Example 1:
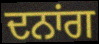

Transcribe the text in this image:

ਦਨਾਂਗ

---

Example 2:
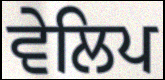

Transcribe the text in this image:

ਵੇਲਿਪ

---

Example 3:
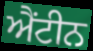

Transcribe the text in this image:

ਐਂਟੀਨ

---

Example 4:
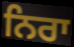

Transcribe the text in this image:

ਨਿਰਾ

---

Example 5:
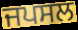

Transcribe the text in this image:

ਜਪਸਲ